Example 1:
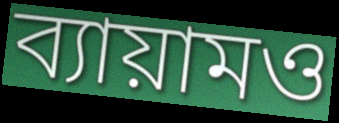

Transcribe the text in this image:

ব্যায়ামও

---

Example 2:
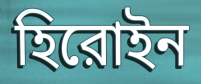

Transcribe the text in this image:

হিরোইন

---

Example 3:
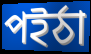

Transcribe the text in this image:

পইঠা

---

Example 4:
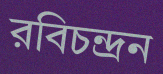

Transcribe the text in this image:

রবিচন্দ্রন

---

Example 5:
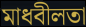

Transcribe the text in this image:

মাধবীলতা